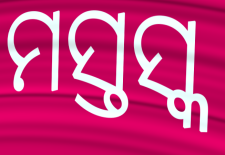
ମସ୍ତସ୍କ